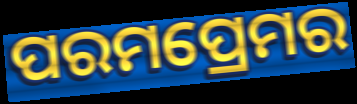
ପରମପ୍ରେମର